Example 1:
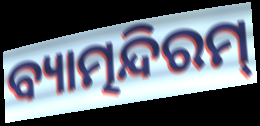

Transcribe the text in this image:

ବ୍ୟାତ୍ମନ୍ଦିରମ୍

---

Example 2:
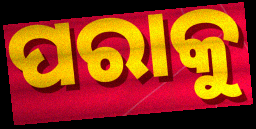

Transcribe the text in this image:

ପରାକୁ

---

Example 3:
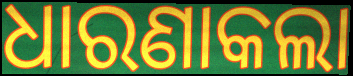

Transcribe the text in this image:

ଧାରଣାକଲା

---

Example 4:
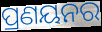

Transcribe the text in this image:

ପ୍ରଣୟନର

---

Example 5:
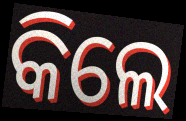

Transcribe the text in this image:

କିଲେ